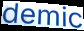
demic